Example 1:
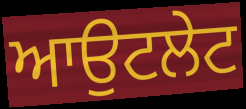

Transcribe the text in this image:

ਆਉਟਲੇਟ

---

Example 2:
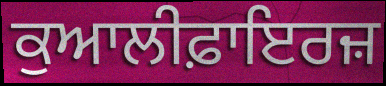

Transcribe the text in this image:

ਕੁਆਲੀਫ਼ਾਇਰਜ਼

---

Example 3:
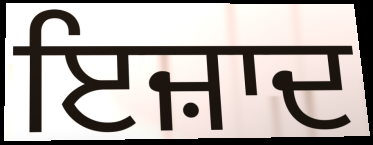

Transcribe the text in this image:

ਇਜ਼ਾਦ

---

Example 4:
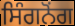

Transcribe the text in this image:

ਸਿੰਗਨੋਂਗ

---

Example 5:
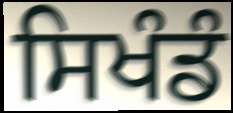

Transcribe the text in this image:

ਸਿਖੰਡੰ